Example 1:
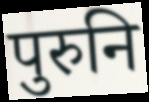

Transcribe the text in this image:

पुरुनि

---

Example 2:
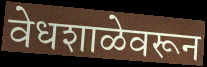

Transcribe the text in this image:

वेधशाळेवरून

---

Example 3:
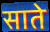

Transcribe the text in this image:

साते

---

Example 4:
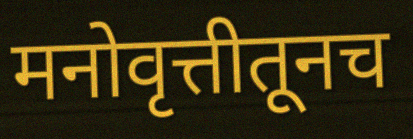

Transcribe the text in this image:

मनोवृत्तीतूनच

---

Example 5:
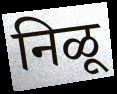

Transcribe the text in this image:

निळू